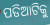
ପଡିଆଟିକୁ